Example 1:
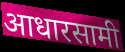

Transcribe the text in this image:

आधारसामी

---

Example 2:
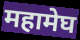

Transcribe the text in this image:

महामेघ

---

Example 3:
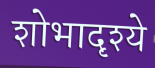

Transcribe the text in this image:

शोभादृश्ये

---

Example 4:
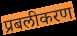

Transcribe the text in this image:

प्रबलीकरण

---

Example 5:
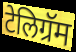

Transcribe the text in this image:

टेलिग्रॅम